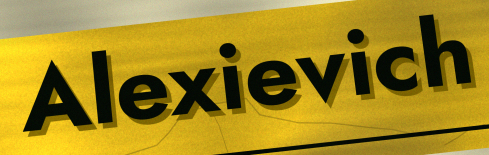
Alexievich